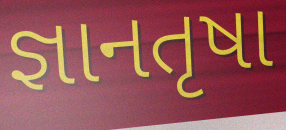
જ્ઞાનતૃષા